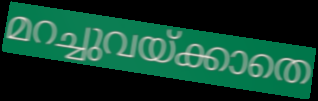
മറച്ചുവയ്ക്കാതെ